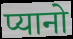
प्यानो